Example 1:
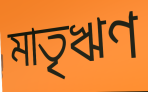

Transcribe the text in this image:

মাতৃঋণ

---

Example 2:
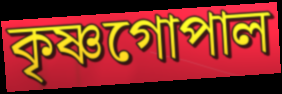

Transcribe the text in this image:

কৃষ্ণগোপাল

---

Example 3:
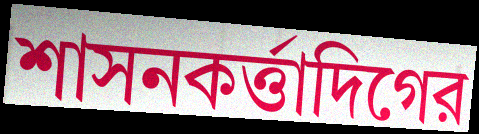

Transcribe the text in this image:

শাসনকর্ত্তাদিগের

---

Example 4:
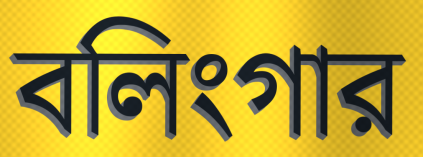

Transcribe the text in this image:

বলিংগার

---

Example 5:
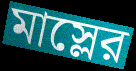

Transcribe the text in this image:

মাস্লের